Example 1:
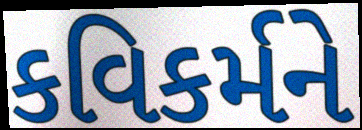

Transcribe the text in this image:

કવિકર્મને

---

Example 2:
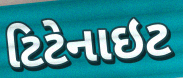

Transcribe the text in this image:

ટિટેનાઇટ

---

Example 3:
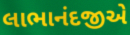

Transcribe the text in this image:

લાભાનંદજીએ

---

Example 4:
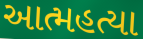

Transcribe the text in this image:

આત્મહત્યા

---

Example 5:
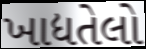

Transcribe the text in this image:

ખાદ્યતેલો